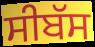
ਸੀਬੱਸ